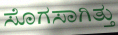
ಸೊಗಸಾಗಿತ್ತು